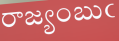
రాజ్యంబుఁ